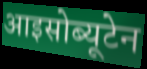
आइसोब्यूटेन